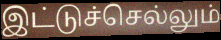
இட்டுச்செல்லும்